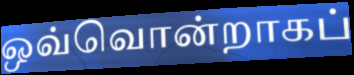
ஒவ்வொன்றாகப்